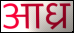
आध्र